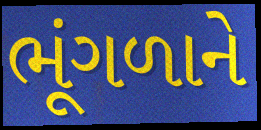
ભૂંગળાને